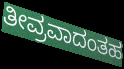
ತೀವ್ರವಾದಂತಹ